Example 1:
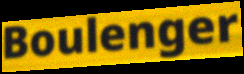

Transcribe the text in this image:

Boulenger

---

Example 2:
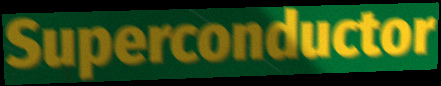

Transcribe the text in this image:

Superconductor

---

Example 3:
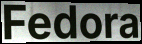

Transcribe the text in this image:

Fedora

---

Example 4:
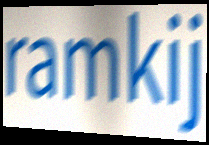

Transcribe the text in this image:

ramkij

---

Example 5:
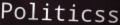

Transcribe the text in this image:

Politicss